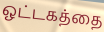
ஒட்டகத்தை